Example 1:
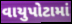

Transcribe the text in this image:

વાયુપોટામાં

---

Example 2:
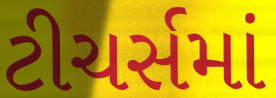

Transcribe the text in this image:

ટીચર્સમાં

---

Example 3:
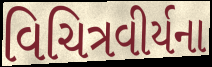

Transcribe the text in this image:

વિચિત્રવીર્યના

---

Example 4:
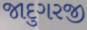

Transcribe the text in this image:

જાદુગરજી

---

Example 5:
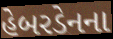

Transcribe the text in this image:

હેબરડેનના